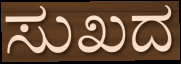
ಸುಖದ